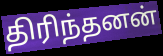
திரிந்தனன்